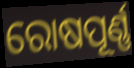
ରୋଷପୂର୍ଣ୍ଣ